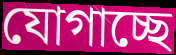
যোগাচ্ছে